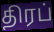
திரப்